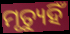
ମୃତ୍ୟୁହିଁ